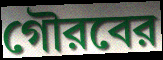
গৌরবের